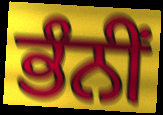
ਭੰਨੀਂ